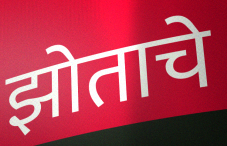
झोताचे